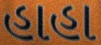
હાહા